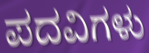
ಪದವಿಗಳು